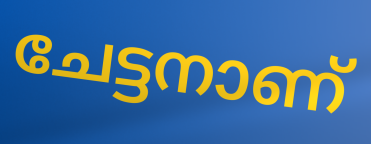
ചേട്ടനാണ്